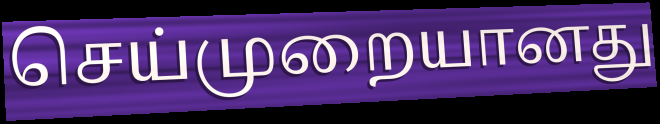
செய்முறையானது